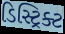
ડિસ્ટ્રિક્ટ